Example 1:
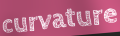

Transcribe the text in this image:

curvature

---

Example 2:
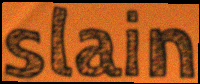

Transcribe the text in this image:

slain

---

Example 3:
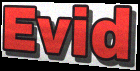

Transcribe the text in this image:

Evid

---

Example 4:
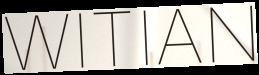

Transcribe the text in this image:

WITIAN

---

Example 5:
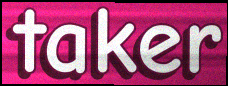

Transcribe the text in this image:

taker